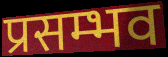
प्रसम्भव